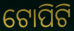
ଟୋପିଟି